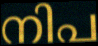
നിപ